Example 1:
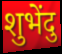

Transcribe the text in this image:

शुभेंदु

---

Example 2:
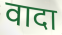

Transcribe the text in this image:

वादा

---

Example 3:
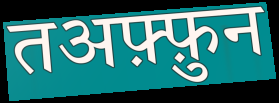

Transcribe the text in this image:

तअफ़्फ़ुन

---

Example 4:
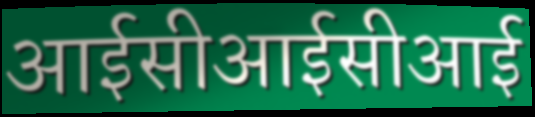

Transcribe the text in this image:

आईसीआईसीआई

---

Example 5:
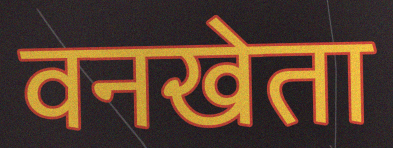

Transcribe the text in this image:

वनखेता